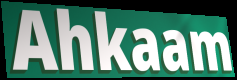
Ahkaam